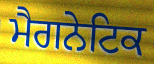
ਮੈਗਨੇਟਿਕ